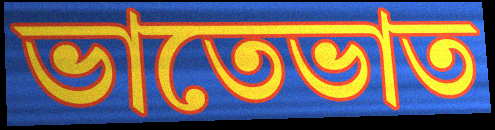
ভাতেভাত